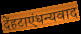
देंहटाएंधन्यवाद